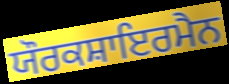
ਯੌਰਕਸ਼ਾਇਰਮੈਨ